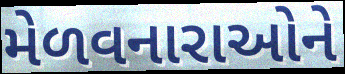
મેળવનારાઓને